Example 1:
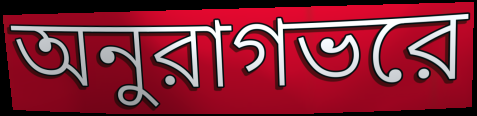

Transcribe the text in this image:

অনুরাগভরে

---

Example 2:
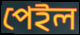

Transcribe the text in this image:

পেইল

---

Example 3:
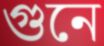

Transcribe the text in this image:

গুনে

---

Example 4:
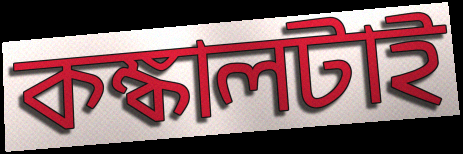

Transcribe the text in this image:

কঙ্কালটাই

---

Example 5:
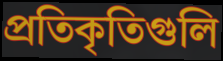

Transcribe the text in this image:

প্রতিকৃতিগুলি